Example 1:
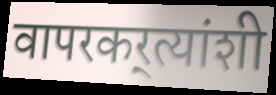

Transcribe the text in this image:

वापरकर्त्यांशी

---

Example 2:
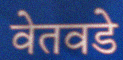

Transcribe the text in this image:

वेतवडे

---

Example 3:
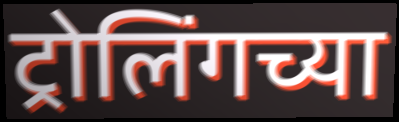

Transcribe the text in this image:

ट्रोलिंगच्या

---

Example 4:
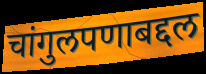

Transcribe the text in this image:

चांगुलपणाबद्दल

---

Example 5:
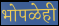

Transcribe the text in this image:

भोपळेही